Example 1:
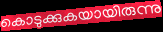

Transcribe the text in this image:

കൊടുക്കുകയായിരുന്നു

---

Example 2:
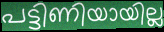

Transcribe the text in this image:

പട്ടിണിയായില്ല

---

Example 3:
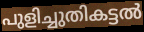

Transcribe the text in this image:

പുളിച്ചുതികട്ടൽ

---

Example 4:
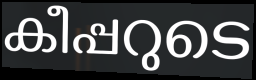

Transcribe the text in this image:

കീപ്പറുടെ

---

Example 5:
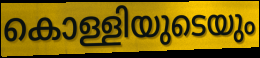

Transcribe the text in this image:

കൊള്ളിയുടെയും